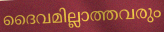
ദൈവമില്ലാത്തവരും